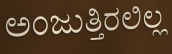
ಅಂಜುತ್ತಿರಲಿಲ್ಲ